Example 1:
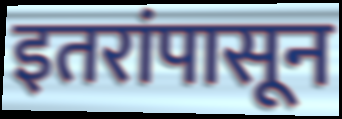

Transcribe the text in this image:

इतरांपासून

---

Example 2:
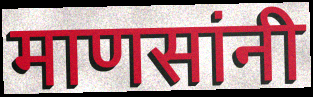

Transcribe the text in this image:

माणसांनी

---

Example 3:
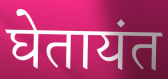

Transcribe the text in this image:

घेतायंत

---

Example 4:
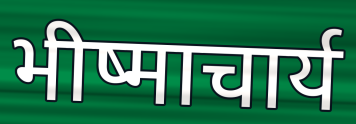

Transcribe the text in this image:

भीष्माचार्य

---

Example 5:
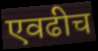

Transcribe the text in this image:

एवढीच